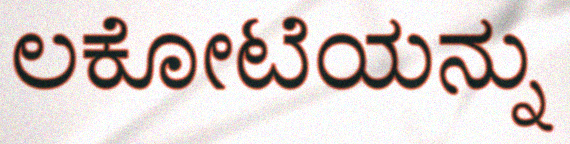
ಲಕೋಟೆಯನ್ನು